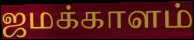
ஜமக்காளம்